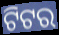
ଟିଟର